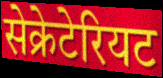
सेक्रेटेरियट